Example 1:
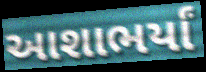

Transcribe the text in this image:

આશાભર્યાં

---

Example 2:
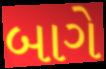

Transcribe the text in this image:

બાગે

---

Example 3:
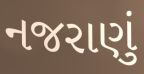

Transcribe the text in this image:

નજરાણું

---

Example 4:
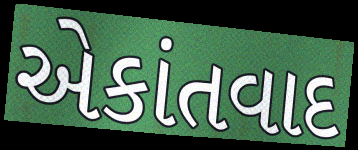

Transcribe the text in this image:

એકાંતવાદ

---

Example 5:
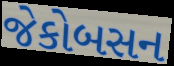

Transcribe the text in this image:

જેકોબસન